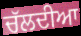
ਚੱਲਦੀਆ